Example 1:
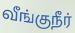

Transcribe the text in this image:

வீங்குநீர்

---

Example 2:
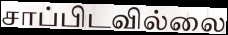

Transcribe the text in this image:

சாப்பிடவில்லை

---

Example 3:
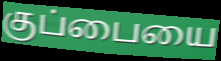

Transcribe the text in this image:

குப்பையை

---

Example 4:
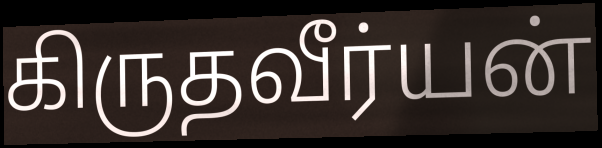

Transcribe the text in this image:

கிருதவீர்யன்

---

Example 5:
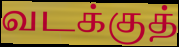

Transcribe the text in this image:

வடக்குத்